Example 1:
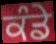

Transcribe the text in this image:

ਕੰਡੇ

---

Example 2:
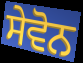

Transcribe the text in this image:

ਸੇਵੋਨ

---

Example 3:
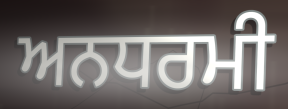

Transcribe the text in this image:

ਅਨਧਰਮੀ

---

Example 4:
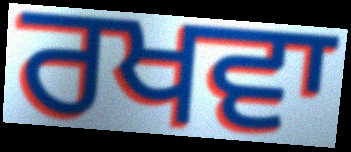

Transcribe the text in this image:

ਰਖਵਾ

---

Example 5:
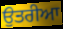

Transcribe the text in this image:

ਉਤਰੀਆ